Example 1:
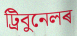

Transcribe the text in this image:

ট্ৰিবুনেলৰ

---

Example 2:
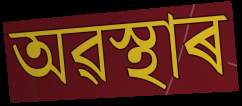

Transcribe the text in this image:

অৱস্থাৰ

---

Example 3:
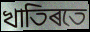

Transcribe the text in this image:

খাতিৰতে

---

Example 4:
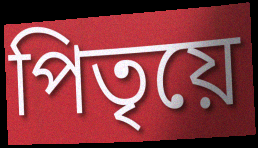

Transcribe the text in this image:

পিতৃয়ে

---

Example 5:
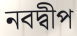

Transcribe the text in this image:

নবদ্বীপ